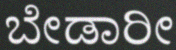
ಬೇಡಾರೀ